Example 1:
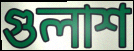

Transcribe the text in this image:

গুলাশ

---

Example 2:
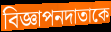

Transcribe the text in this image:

বিজ্ঞাপনদাতাকে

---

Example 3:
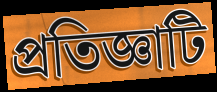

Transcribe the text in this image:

প্রতিজ্ঞাটি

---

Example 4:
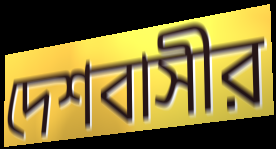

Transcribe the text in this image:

দেশবাসীর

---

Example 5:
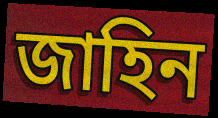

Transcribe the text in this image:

জাহিন